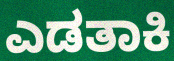
ಎಡತಾಕಿ